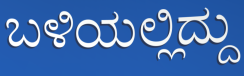
ಬಳಿಯಲ್ಲಿದ್ದು